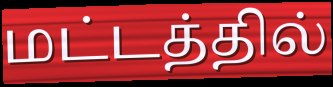
மட்டத்தில்